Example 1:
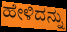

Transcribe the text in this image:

ಹೇಳಿದನ್ನು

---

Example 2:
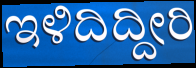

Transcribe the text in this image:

ಇಳಿದಿದ್ದೀರಿ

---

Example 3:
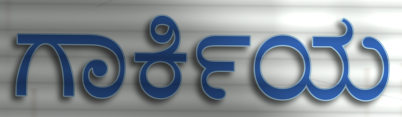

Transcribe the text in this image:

ಗಾರ್ಕಿಯ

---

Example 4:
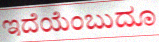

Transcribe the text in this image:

ಇದೆಯೆಂಬುದೂ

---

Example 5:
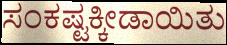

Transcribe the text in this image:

ಸಂಕಷ್ಟಕ್ಕೀಡಾಯಿತು